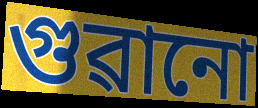
গুৱানো